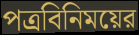
পত্রবিনিময়ের